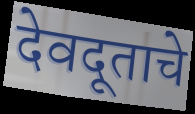
देवदूताचे